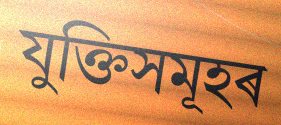
যুক্তিসমূহৰ